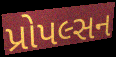
પ્રોપલ્સન